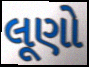
લૂણો